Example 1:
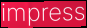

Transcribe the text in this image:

impress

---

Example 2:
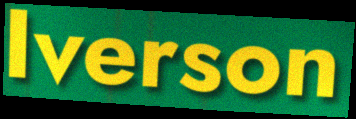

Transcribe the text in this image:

Iverson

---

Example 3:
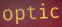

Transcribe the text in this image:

optic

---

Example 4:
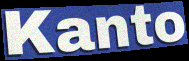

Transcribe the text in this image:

Kanto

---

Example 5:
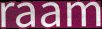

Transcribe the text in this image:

raam